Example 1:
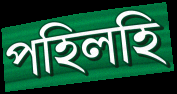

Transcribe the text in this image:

পহিলহি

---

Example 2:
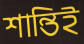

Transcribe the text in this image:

শান্তিই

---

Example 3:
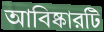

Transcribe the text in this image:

আবিষ্কারটি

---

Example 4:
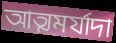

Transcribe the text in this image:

আত্মমর্যাদা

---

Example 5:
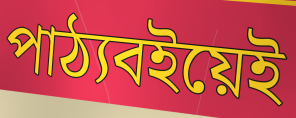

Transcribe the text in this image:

পাঠ্যবইয়েই